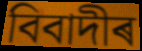
বিবাদীৰ